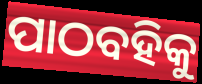
ପାଠବହିକୁ